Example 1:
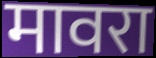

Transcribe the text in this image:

मावरा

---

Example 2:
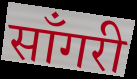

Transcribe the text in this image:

साँगरी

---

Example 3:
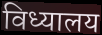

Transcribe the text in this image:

विध्यालय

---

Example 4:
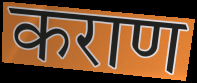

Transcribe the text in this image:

कराण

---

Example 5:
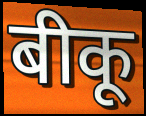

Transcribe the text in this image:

बीकू